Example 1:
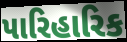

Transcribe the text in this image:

પારિહારિક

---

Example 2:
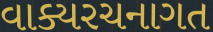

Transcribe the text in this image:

વાક્યરચનાગત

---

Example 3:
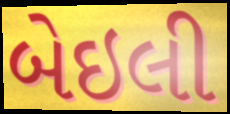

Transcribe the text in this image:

બેઇલી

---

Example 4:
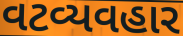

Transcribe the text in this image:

વટવ્યવહાર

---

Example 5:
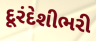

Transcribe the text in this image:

દૂરંદેશીભરી